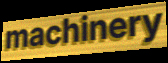
machinery